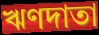
ঋণদাতা